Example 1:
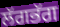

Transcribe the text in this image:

ਲੱਗਭੱਗ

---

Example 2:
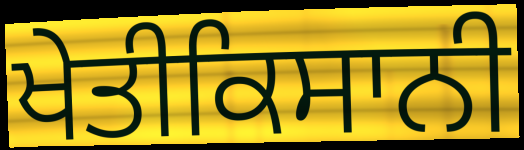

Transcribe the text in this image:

ਖੇਤੀਕਿਸਾਨੀ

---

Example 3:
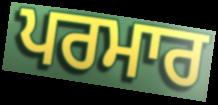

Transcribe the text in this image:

ਪਰਮਾਰ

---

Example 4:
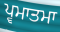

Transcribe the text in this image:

ਪ੍ਵਮਾਤਮਾ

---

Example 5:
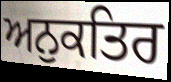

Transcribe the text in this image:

ਅਨੁਕਤਿਰ